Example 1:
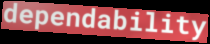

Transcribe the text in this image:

dependability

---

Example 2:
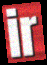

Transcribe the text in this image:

ir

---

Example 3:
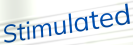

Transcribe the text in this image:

Stimulated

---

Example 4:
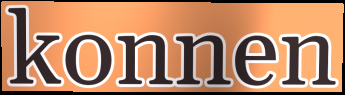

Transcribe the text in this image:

konnen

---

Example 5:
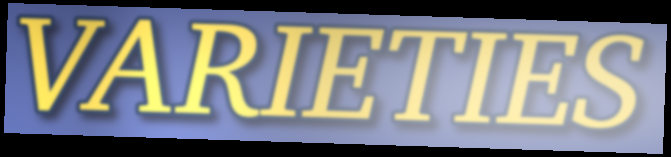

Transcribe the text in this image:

VARIETIES